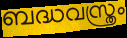
ബദ്ധവസ്ത്രം